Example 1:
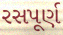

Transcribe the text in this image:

રસપૂર્ણ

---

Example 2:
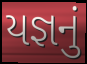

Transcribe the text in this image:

યજ્ઞનું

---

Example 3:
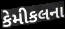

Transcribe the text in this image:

કેમીકલના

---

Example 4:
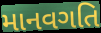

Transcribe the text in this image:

માનવગતિ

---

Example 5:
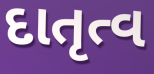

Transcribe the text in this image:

દાતૃત્વ